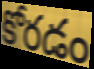
కోరడం